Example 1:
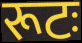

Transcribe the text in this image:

रूटः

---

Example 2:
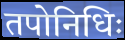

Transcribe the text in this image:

तपोनिधिः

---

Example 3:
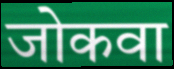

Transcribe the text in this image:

जोकवा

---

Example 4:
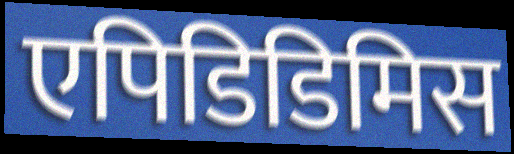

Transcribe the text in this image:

एपिडिडिमिस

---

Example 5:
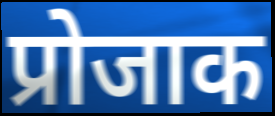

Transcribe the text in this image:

प्रोजाक